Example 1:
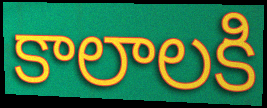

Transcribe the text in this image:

కాలాలకి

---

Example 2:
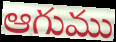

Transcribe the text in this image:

ఆగుము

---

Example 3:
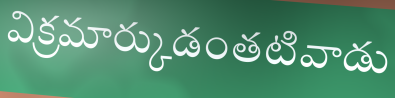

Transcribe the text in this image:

విక్రమార్కుడంతటివాడు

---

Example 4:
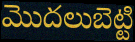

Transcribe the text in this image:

మొదలుబెట్టి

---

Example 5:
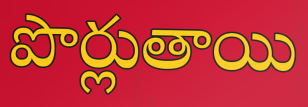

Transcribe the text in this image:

పొర్లుతాయి